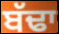
ਬੱਢਾ